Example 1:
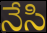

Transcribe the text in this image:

నేసి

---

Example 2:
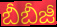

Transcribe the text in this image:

బీబీజీ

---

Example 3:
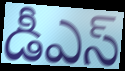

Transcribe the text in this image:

డీఎస్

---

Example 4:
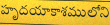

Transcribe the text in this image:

హృదయాకాశములోని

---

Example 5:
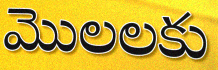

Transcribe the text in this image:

మొలలకు